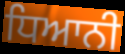
ਧਿਆਨੀ